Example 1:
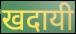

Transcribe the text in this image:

खदायी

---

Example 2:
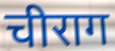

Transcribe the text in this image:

चीराग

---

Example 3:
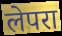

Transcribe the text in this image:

लेपरा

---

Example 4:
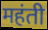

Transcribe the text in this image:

महंती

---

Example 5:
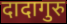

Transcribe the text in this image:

दादागुरु